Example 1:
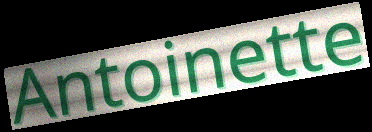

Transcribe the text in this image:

Antoinette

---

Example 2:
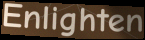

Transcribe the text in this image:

Enlighten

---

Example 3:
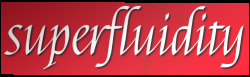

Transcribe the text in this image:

superfluidity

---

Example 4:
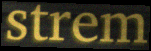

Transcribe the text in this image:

strem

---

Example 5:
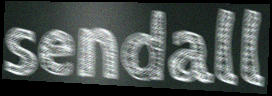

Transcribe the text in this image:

sendall